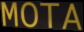
MOTA